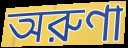
অৰুণা